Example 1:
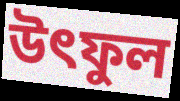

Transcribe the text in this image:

উৎফুল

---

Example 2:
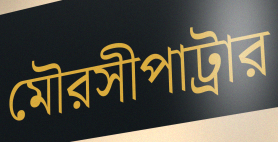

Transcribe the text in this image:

মৌরসীপাট্রার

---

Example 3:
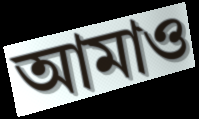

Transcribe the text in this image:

আমাও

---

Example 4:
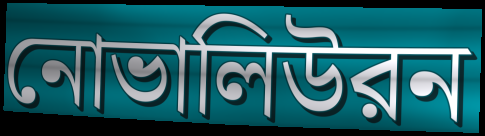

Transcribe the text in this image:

নোভালিউরন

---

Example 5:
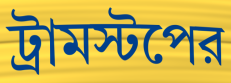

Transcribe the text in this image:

ট্রামস্টপের